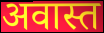
अवास्त